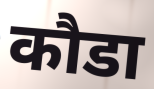
कौडा